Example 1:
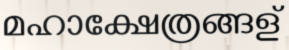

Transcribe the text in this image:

മഹാക്ഷേത്രങ്ങള്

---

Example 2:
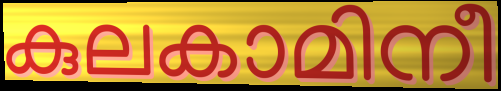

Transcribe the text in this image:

കുലകാമിനീ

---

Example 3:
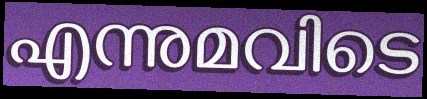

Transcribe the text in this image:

എന്നുമവിടെ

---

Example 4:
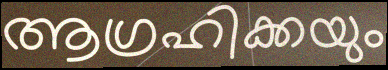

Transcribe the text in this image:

ആഗ്രഹിക്കയും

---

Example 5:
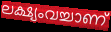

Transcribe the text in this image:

ലക്ഷ്യംവച്ചാണ്